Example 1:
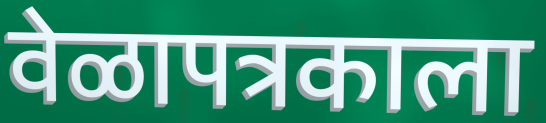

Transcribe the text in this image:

वेळापत्रकाला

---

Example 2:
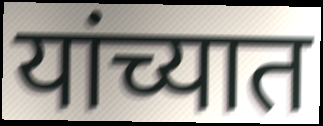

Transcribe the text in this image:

यांच्यात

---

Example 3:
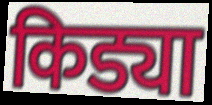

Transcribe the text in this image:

किड्या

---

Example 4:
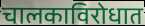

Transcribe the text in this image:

चालकाविरोधात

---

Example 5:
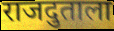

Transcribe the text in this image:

राजदुताला